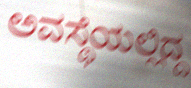
ಅವಸ್ಥೆಯಲ್ಲಿದ್ದ